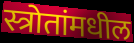
स्त्रोतांमधील